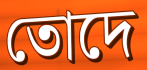
তোদে